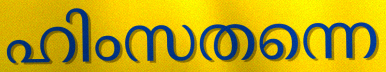
ഹിംസതന്നെ